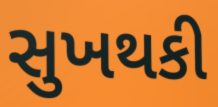
સુખથકી